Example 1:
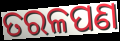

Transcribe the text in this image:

ତରଳପଣ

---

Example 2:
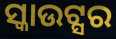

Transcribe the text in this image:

ସ୍କାଉଟ୍ସର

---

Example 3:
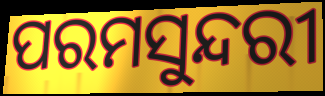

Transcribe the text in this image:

ପରମସୁନ୍ଦରୀ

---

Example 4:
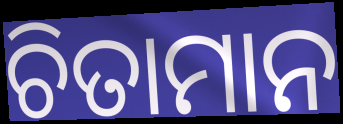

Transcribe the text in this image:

ଚିତାମାନ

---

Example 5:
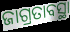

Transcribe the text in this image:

ଜାଗ୍ରତାବସ୍ଥା